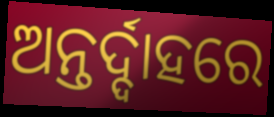
ଅନ୍ତର୍ଦ୍ଦାହରେ